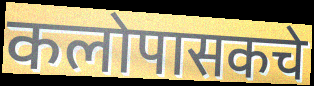
कलोपासकचे